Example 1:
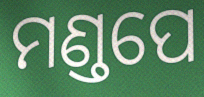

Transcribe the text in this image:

ମଣ୍ଡପେ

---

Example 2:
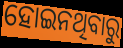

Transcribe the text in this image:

ହୋଇନଥିବାରୁ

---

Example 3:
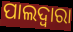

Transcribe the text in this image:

ପାଲଦ୍ୱାରା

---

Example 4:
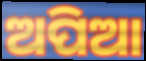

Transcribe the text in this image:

ଅପିଆ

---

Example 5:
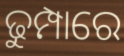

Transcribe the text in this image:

ଢୁମ୍ପାରେ